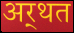
अर्थत